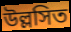
উল্লসিত